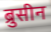
ब्रुसीन